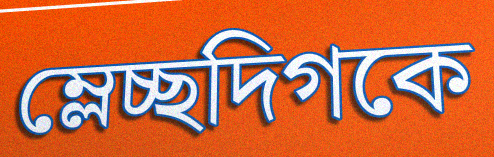
ম্লেচ্ছদিগকে